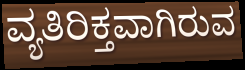
ವ್ಯತಿರಿಕ್ತವಾಗಿರುವ